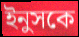
ইনুসকে